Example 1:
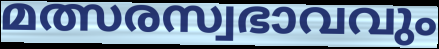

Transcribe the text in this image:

മത്സരസ്വഭാവവും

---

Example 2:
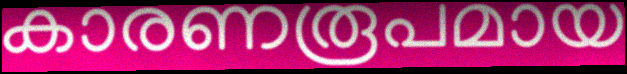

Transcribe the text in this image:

കാരണരൂപമായ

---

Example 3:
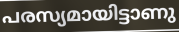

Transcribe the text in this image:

പരസ്യമായിട്ടാണു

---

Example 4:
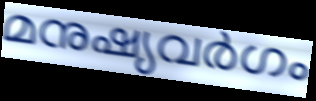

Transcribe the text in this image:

മനുഷ്യവർഗം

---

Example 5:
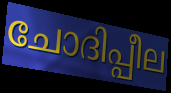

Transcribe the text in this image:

ചോദിപ്പീല